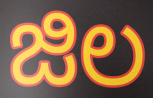
జిల